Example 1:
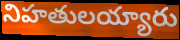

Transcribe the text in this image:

నిహతులయ్యారు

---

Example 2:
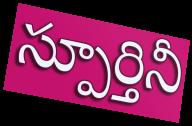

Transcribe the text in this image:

స్పూర్తినీ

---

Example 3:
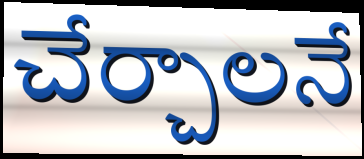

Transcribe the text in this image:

చేర్చాలనే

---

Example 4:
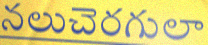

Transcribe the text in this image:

నలుచెరగులా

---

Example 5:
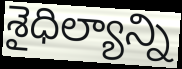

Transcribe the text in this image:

శైధిల్యాన్ని